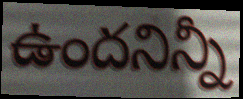
ఉందనిన్నీ